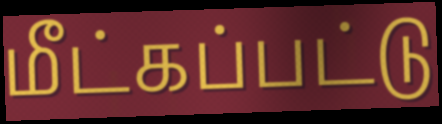
மீட்கப்பட்டு